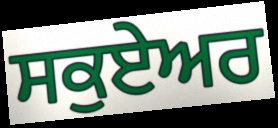
ਸਕੁਏਅਰ